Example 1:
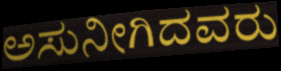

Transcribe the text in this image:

ಅಸುನೀಗಿದವರು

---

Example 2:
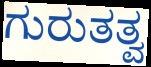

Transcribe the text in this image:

ಗುರುತತ್ವ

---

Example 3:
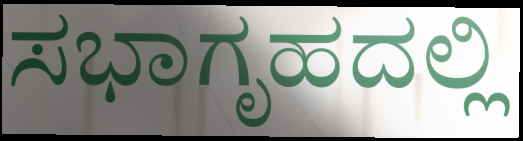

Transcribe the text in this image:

ಸಭಾಗೃಹದಲ್ಲಿ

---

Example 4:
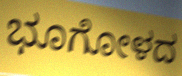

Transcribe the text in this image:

ಭೂಗೋಳದ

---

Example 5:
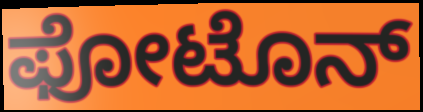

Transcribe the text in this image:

ಫೋಟೊನ್